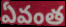
ఏవంత